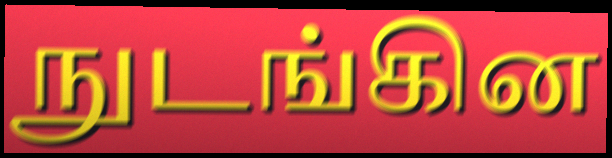
நுடங்கின